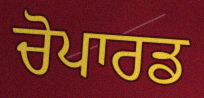
ਚੋਪਾਰਡ